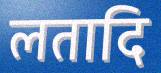
लतादि